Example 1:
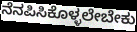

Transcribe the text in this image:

ನೆನಪಿಸಿಕೊಳ್ಳಲೇಬೇಕು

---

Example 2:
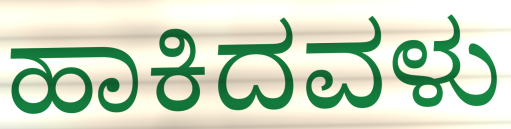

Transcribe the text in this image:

ಹಾಕಿದವಳು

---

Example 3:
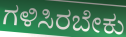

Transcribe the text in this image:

ಗಳಿಸಿರಬೇಕು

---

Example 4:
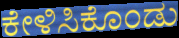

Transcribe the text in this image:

ಕೇಳಿಸಿಕೊಂಡು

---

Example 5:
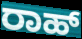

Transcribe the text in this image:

ರಾಹ್